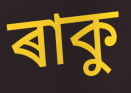
ৰাকু